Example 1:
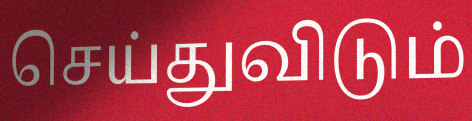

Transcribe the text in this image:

செய்துவிடும்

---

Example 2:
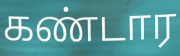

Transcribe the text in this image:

கண்டார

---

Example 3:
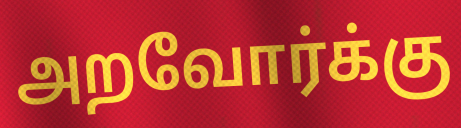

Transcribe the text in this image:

அறவோர்க்கு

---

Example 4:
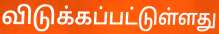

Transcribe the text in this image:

விடுக்கப்பட்டுள்ளது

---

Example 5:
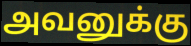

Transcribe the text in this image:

அவனுக்கு